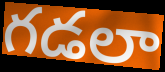
గడలా